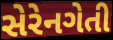
સેરેનગેતી